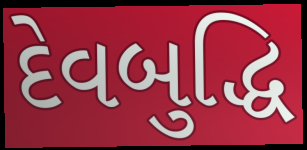
દેવબુદ્ધિ